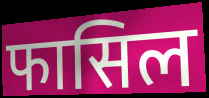
फासिल